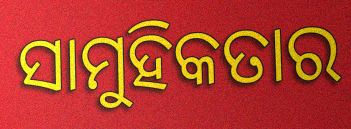
ସାମୁହିକତାର